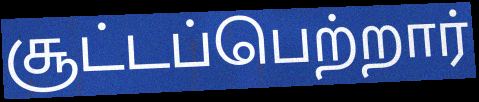
சூட்டப்பெற்றார்